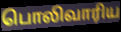
பொலிவாரிய